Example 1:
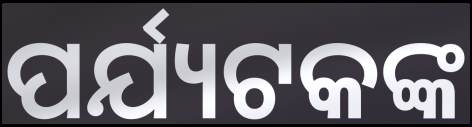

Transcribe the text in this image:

ପର୍ଯ୍ୟଟକଙ୍କ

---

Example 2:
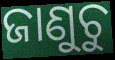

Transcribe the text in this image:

ଜାଣୁଚୁ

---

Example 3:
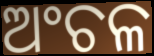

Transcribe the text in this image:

ଅଂଚଳ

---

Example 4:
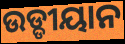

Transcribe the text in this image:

ଉଡ୍ଡୀୟାନ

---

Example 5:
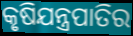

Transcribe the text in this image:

କୃଷିଯନ୍ତ୍ରପାତିର